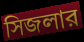
সিজলার